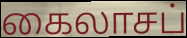
கைலாசப்